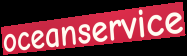
oceanservice